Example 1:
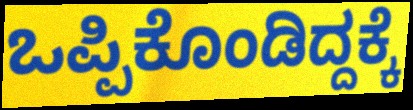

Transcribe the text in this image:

ಒಪ್ಪಿಕೊಂಡಿದ್ದಕ್ಕೆ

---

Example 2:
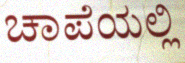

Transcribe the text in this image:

ಚಾಪೆಯಲ್ಲಿ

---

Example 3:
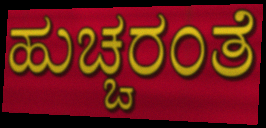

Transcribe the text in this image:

ಹುಚ್ಚರಂತೆ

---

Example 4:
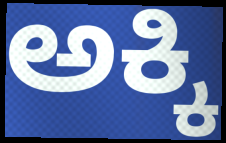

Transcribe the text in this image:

ಅಕ್ಕಿ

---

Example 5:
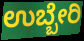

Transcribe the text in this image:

ಉಬ್ಬೇರಿ